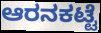
ಆರನಕಟ್ಟೆ